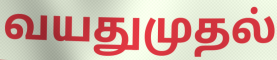
வயதுமுதல்